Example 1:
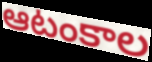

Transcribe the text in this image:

ఆటంకాల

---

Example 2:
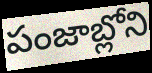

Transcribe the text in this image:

పంజాబ్లోని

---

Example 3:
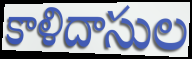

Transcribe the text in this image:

కాళిదాసుల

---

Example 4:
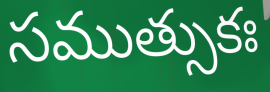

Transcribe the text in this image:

సముత్సుకః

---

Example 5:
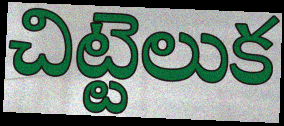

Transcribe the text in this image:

చిట్టెలుక